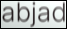
abjad